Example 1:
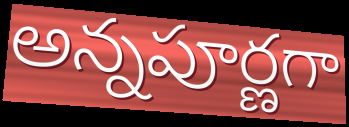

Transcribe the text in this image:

అన్నపూర్ణగా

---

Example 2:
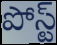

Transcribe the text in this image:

పోస్ట్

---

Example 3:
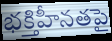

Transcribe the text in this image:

భక్తిహీనతపై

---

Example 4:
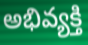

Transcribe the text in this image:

అభివ్యక్తి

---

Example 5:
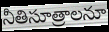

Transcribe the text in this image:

నీతిసూత్రాలనూ